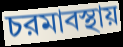
চরমাবস্থায়